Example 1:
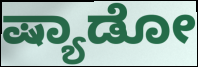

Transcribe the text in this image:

ಷ್ಯಾಡೋ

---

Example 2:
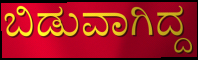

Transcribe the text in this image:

ಬಿಡುವಾಗಿದ್ದ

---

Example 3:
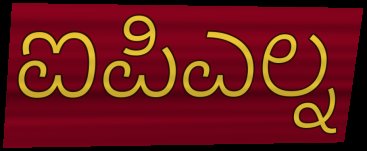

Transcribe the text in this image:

ಐಪಿಎಲ್ನ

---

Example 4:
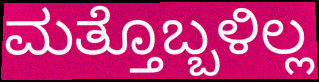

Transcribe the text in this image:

ಮತ್ತೊಬ್ಬಳಿಲ್ಲ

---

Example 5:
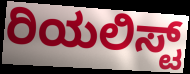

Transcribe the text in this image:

ರಿಯಲಿಸ್ಟ್